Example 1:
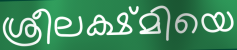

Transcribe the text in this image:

ശ്രീലക്ഷ്മിയെ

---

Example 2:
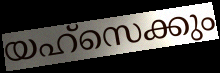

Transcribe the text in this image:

യഹ്സെക്കും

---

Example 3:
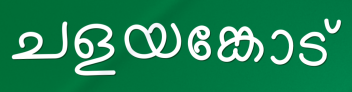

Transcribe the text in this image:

ചളയങ്കോട്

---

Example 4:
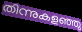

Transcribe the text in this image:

തിന്നുകളഞ്ഞു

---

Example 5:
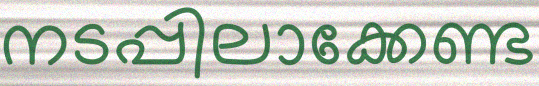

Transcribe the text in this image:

നടപ്പിലാക്കേണ്ട